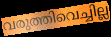
വരുത്തിവെച്ചില്ല